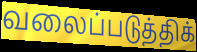
வலைப்படுத்திக்